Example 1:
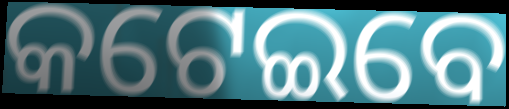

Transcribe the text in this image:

କଟେଇବେ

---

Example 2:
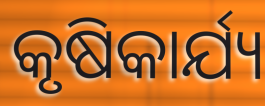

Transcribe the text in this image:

କୃଷିକାର୍ଯ୍ୟ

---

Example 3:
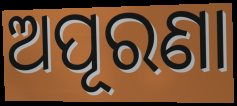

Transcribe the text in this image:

ଅପୂରଣା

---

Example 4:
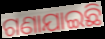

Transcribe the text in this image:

ଗଣାଯାଇଛି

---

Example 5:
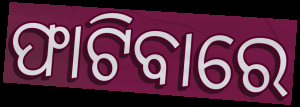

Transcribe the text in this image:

ଫାଟିବାରେ